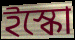
ইস্কো